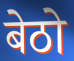
बेठो